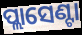
ପ୍ଲାସେଣ୍ଟା